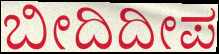
ಬೀದಿದೀಪ